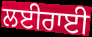
ਲਈਰਾਈ